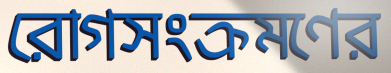
রোগসংক্রমণের